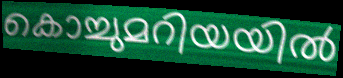
കൊച്ചുമറിയയിൽ